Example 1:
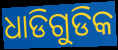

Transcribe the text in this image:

ଧାଡିଗୁଡିକ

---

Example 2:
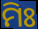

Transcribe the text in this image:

ମିଃ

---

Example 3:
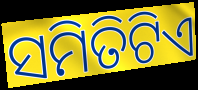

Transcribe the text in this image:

ସମିତିଟିଏ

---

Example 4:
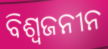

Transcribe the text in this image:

ବିଶ୍ୱଜନୀନ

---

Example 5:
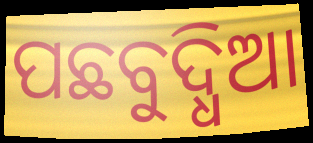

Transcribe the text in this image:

ପଛବୁଦ୍ଧିଆ